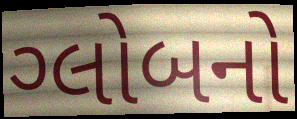
ગ્લોબનો